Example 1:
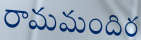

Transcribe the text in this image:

రామమందిర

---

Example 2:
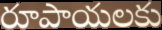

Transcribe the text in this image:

రూపాయలకు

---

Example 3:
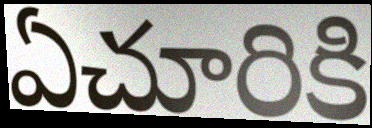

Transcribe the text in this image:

ఏచూరికి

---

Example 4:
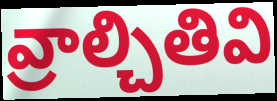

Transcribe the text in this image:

వ్రాల్చితివి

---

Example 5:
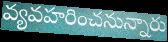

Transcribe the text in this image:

వ్యవహరించనున్నారు